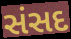
સંસદ